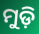
ମୁଡ଼ି